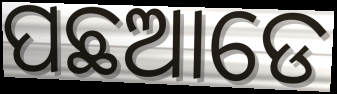
ପଛଆଡେ